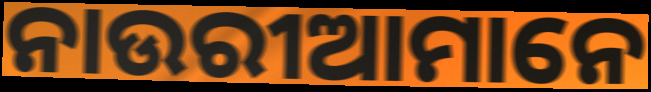
ନାଉରୀଆମାନେ